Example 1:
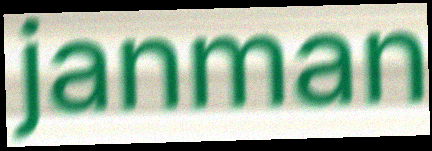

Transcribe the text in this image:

janman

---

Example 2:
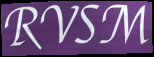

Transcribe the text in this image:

RVSM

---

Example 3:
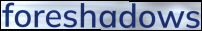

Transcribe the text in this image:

foreshadows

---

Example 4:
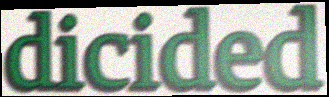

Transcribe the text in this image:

dicided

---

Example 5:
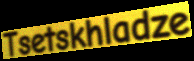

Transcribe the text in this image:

Tsetskhladze